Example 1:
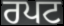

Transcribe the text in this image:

ਰਪਟ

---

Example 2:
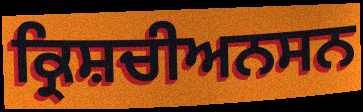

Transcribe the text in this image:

ਕ੍ਰਿਸ਼ਚੀਅਨਸਨ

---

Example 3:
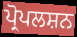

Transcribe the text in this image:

ਪ੍ਰੋਪਲਸ਼ਨ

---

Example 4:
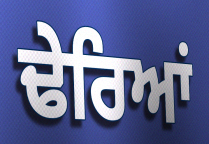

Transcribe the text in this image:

ਢੇਰਿਆਂ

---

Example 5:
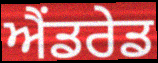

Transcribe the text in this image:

ਐਂਡਰੇਡ